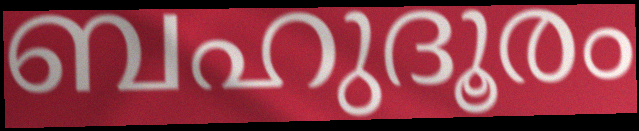
ബഹുദൂരം